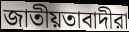
জাতীয়তাবাদীরা